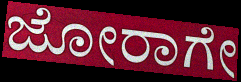
ಜೋರಾಗೇ